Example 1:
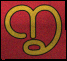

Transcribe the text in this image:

നൃ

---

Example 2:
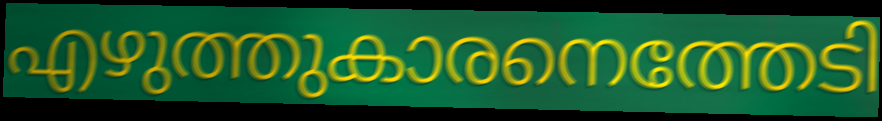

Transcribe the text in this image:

എഴുത്തുകാരനെത്തേടി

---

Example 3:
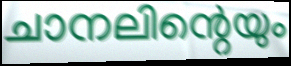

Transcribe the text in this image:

ചാനലിന്റെയും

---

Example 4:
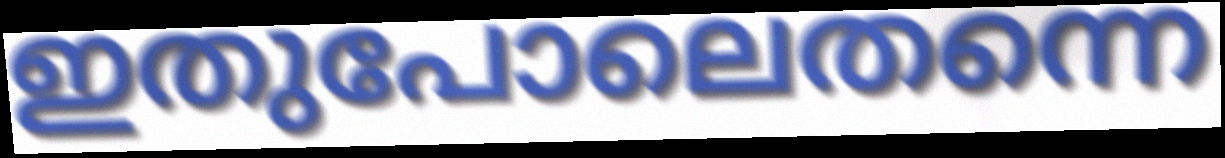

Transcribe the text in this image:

ഇതുപോലെതന്നെ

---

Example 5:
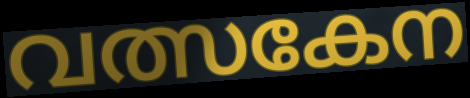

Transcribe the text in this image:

വത്സകേന